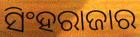
ସିଂହରାଜାର